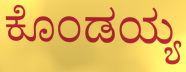
ಕೊಂಡಯ್ಯ